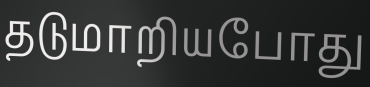
தடுமாறியபோது